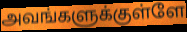
அவங்களுக்குள்ளே